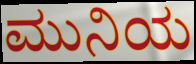
ಮುನಿಯ